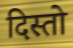
दिस्तो